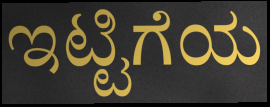
ಇಟ್ಟಿಗೆಯ